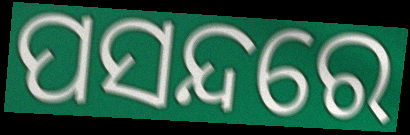
ପସନ୍ଦରେ